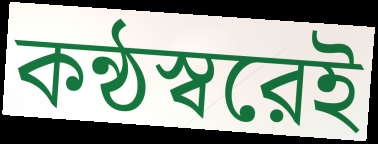
কন্ঠস্বরেই